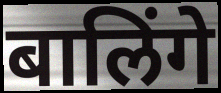
बालिंगे